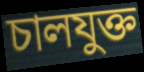
চালযুক্ত